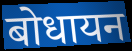
बोधायन